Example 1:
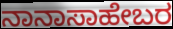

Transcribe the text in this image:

ನಾನಾಸಾಹೇಬರ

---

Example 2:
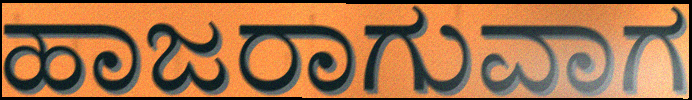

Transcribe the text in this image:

ಹಾಜರಾಗುವಾಗ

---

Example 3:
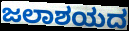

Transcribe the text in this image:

ಜಲಾಶಯದ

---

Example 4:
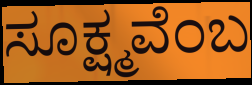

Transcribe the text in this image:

ಸೂಕ್ಷ್ಮವೆಂಬ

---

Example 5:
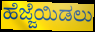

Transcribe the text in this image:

ಹೆಜ್ಜೆಯಿಡಲು